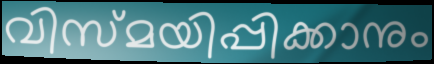
വിസ്മയിപ്പിക്കാനും